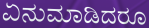
ಏನುಮಾಡಿದರೂ